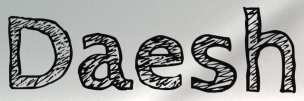
Daesh